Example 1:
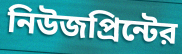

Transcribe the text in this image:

নিউজপ্রিন্টের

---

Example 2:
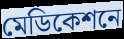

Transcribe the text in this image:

মেডিকেশনে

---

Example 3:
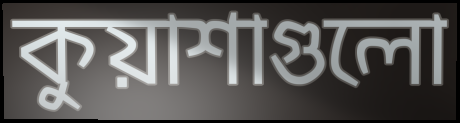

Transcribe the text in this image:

কুয়াশাগুলো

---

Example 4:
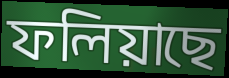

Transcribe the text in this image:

ফলিয়াছে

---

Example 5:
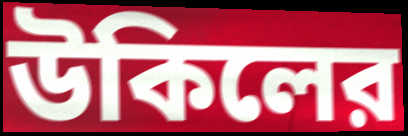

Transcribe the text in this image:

উকিলের